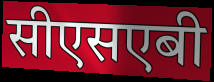
सीएसएबी